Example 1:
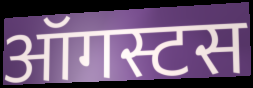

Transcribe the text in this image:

ऑगस्टस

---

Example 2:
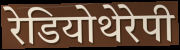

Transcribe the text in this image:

रेडियोथेरेपी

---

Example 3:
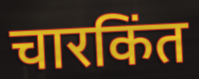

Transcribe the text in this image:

चारकिंत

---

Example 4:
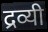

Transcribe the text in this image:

द्रव्यी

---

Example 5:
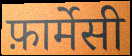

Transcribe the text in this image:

फ़ार्मेसी